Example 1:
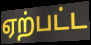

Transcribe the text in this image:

ஏற்பட்ட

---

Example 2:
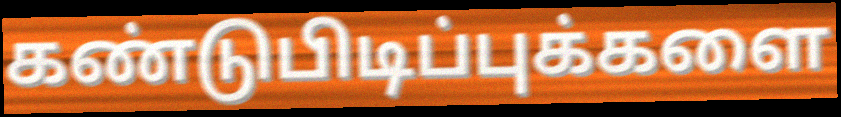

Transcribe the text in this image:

கண்டுபிடிப்புக்களை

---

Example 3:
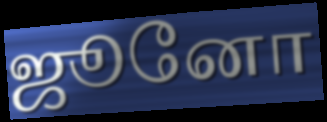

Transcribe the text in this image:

ஜூனோ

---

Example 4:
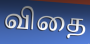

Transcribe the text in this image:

விதை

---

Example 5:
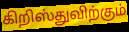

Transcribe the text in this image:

கிறிஸ்துவிற்கும்